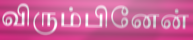
விரும்பினேன்